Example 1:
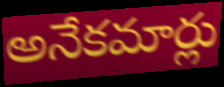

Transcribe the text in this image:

అనేకమార్లు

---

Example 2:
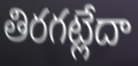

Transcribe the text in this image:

తిరగట్లేదా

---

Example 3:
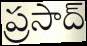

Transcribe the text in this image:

ప్రసాద్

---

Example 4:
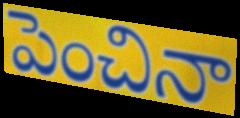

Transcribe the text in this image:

పెంచినా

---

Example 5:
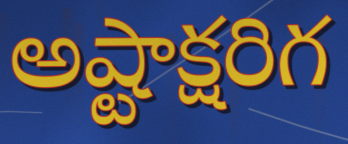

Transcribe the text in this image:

అష్టాక్షరిగ